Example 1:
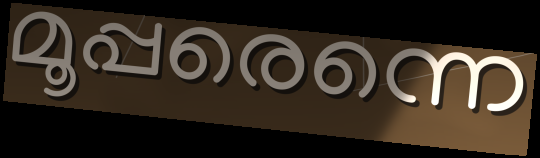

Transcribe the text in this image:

മൂപ്പരെന്നെ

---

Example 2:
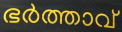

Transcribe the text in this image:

ഭർത്താവ്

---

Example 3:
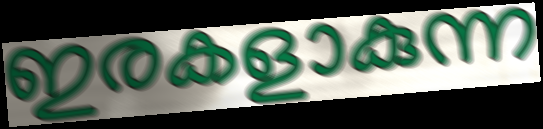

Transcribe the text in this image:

ഇരകളാകുന്ന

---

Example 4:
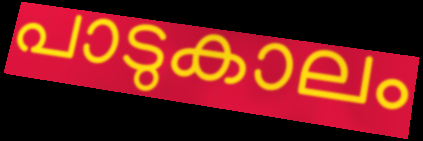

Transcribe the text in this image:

പാടുകാലം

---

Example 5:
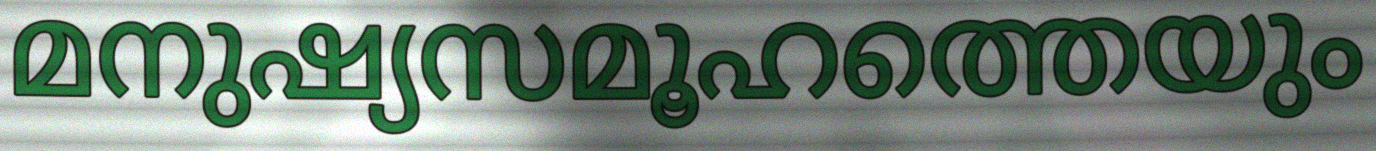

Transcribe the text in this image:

മനുഷ്യസമൂഹത്തെയും